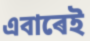
এবাৰেই